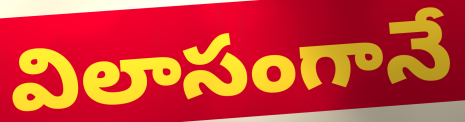
విలాసంగానే